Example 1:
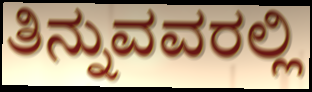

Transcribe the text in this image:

ತಿನ್ನುವವರಲ್ಲಿ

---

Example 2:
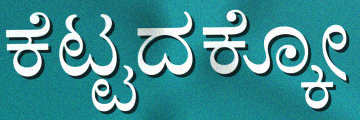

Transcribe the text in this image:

ಕೆಟ್ಟದಕ್ಕೋ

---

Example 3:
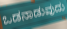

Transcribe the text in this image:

ಒಡನಾಡುವುದು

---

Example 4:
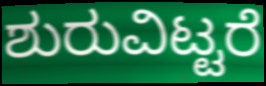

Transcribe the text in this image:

ಶುರುವಿಟ್ಟರೆ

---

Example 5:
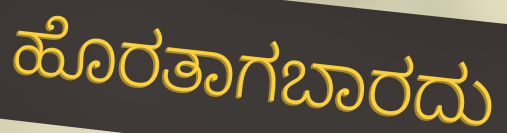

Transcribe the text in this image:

ಹೊರತಾಗಬಾರದು